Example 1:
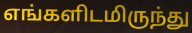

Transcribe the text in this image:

எங்களிடமிருந்து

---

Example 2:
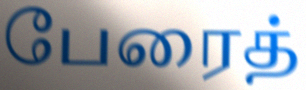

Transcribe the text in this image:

பேரைத்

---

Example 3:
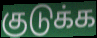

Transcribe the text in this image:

குடுக்க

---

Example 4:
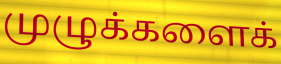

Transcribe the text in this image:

முழுக்களைக்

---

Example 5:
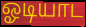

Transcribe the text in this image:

ஓடியாட